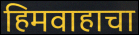
हिमवाहाचा